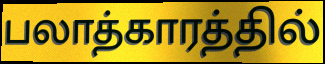
பலாத்காரத்தில்